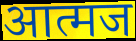
आत्मज